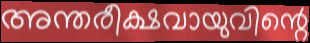
അന്തരീക്ഷവായുവിന്റെ